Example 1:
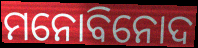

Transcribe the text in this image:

ମନୋବିନୋଦ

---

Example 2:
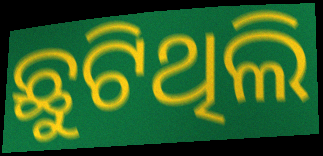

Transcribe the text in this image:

ଛୁଟିଥିଲି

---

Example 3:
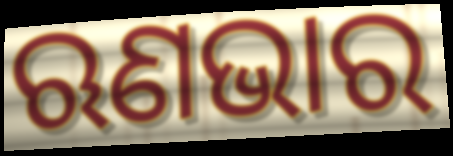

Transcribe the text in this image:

ଋଣଭାର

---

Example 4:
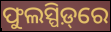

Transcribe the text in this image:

ଫୁଲସ୍ପିଡ଼୍‌ରେ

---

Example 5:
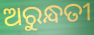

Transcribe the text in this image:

ଅରୁନ୍ଧତୀ